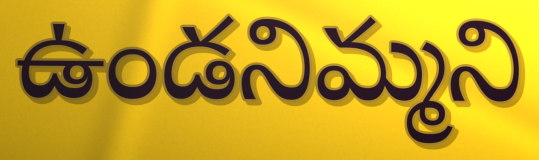
ఉండనిమ్మని